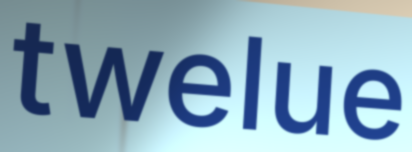
twelue